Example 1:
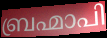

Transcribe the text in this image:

ബ്രഹ്മാപി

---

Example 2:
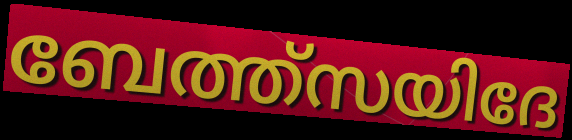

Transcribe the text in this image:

ബേത്ത്സയിദേ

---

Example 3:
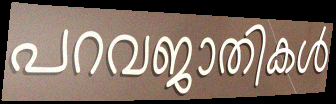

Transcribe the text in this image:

പറവജാതികൾ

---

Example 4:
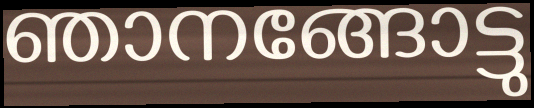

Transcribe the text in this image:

ഞാനങ്ങോട്ടു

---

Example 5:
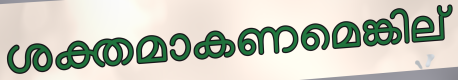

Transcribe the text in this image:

ശക്തമാകണമെങ്കില്